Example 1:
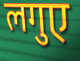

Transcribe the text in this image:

लगुए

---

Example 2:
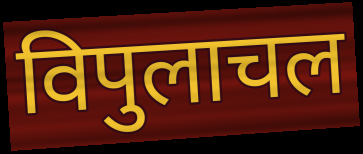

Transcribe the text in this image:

विपुलाचल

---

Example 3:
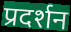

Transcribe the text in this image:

प्रदर्शन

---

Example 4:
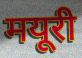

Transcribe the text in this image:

मयूरी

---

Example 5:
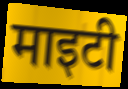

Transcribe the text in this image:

माइटी